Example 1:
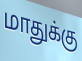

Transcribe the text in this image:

மாதுக்கு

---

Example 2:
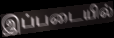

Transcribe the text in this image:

இப்படையில்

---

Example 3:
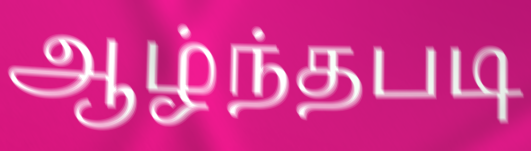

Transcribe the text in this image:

ஆழ்ந்தபடி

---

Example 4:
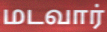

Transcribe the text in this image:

மடவார்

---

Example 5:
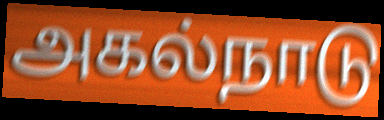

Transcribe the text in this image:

அகல்நாடு